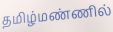
தமிழ்மண்ணில்